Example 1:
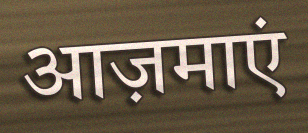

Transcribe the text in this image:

आज़माएं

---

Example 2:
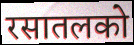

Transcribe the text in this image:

रसातलको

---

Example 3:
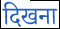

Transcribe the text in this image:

दिखना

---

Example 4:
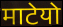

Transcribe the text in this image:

माटेयो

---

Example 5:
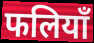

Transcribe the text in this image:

फलियाँ